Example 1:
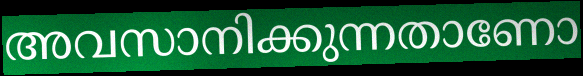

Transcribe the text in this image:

അവസാനിക്കുന്നതാണോ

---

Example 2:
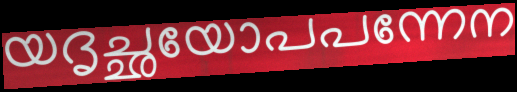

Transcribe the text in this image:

യദൃച്ഛയോപപന്നേന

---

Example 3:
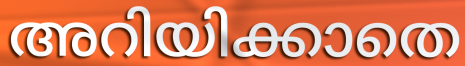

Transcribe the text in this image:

അറിയിക്കാതെ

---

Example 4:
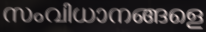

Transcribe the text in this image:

സംവിധാനങ്ങളെ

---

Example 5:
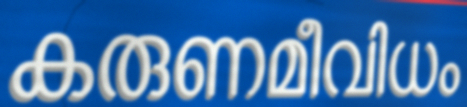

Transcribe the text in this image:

കരുണമീവിധം